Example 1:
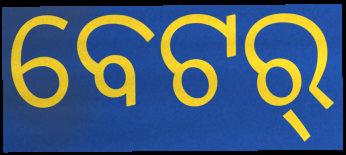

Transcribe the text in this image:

ବେଟର୍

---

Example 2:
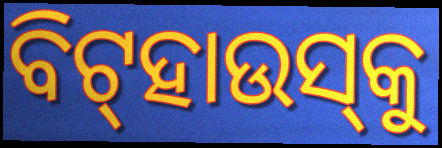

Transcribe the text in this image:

ବିଟ୍‌ହାଉସ୍‌କୁ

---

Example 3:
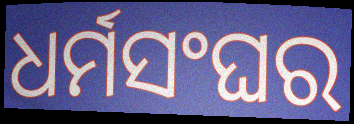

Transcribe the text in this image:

ଧର୍ମସଂଘର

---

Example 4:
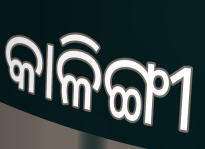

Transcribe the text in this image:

କାଳିଙ୍ଗୀ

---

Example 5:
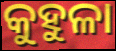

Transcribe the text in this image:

କୁହୁଳା